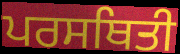
ਪਰਸਥਿਤੀ